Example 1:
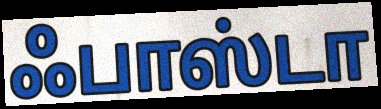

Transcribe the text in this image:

ஃபாஸ்டா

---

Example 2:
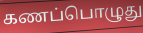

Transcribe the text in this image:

கணப்பொழுது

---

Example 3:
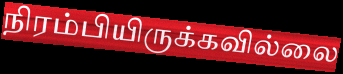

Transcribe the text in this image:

நிரம்பியிருக்கவில்லை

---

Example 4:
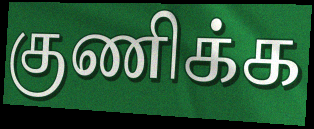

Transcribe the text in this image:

குணிக்க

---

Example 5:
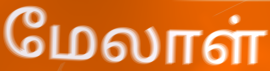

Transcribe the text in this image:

மேலாள்